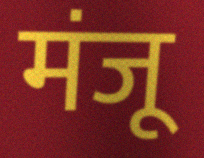
मंजू